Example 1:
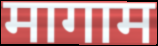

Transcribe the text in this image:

मागाम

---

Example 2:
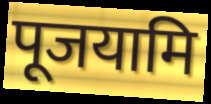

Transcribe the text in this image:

पूजयामि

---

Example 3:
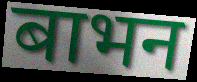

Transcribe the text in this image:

बाभन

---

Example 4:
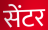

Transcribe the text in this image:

सेंटर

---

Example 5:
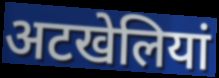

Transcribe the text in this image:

अटखेलियां